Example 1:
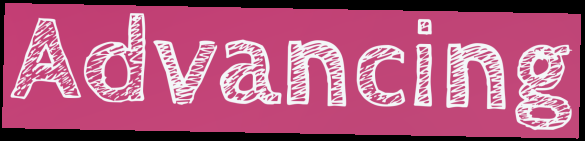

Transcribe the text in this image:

Advancing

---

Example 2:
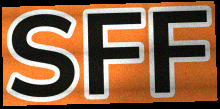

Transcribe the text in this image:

SFF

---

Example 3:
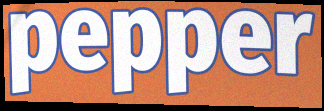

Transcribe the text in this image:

pepper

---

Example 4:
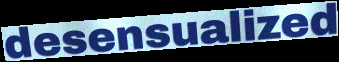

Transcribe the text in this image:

desensualized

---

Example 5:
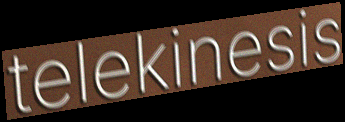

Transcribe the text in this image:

telekinesis